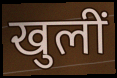
खुलीं